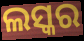
ଲସ୍କର